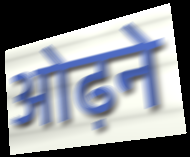
ओढ़ने